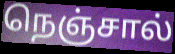
நெஞ்சால்